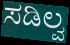
ಸಡಿಲ್ವ